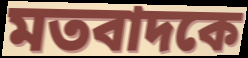
মতবাদকে